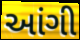
આંગી